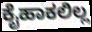
ಕೈಹಾಕಲಿಲ್ಲ